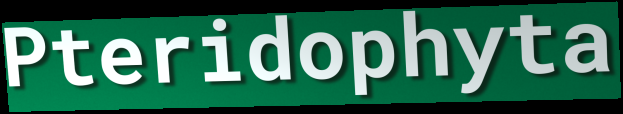
Pteridophyta